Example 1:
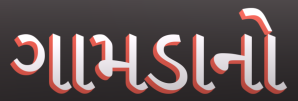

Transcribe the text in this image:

ગામડાનો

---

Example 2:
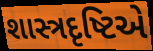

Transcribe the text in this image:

શાસ્ત્રદૃષ્ટિએ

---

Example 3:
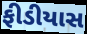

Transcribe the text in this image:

ફીડીયાસ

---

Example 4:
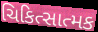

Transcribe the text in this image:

ચિકિત્સાત્મક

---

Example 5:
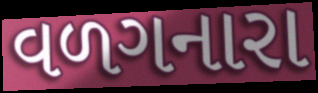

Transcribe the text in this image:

વળગનારા